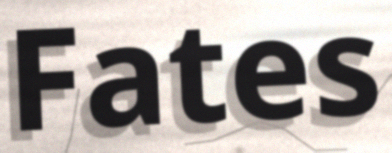
Fates